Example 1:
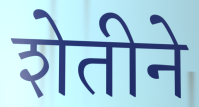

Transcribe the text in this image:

शेतीने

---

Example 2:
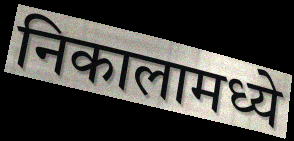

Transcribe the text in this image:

निकालामध्ये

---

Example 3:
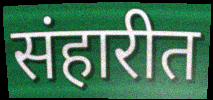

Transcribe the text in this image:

संहारीत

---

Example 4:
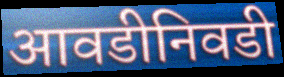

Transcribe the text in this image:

आवडीनिवडी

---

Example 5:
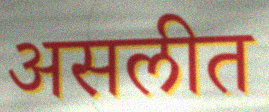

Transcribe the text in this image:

असलीत